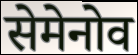
सेमेनोव